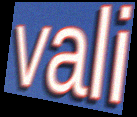
vali